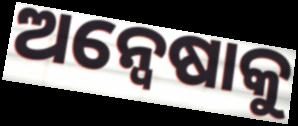
ଅନ୍ୱେଷାକୁ